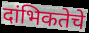
दांभिकतेचे